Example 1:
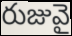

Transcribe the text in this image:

రుజువై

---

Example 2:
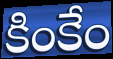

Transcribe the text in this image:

కింకేం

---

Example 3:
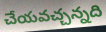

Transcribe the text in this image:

చేయవచ్చన్నది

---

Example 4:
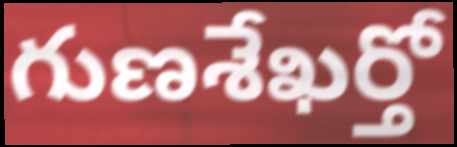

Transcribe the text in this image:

గుణశేఖర్తో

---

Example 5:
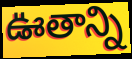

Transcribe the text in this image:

ఊతాన్ని